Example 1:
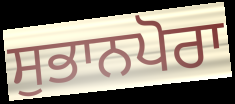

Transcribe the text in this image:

ਸੁਭਾਨਪੋਰਾ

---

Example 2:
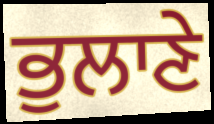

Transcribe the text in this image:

ਭੁਲਾਣੇ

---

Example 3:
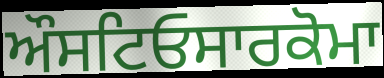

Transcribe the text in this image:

ਔਸਟਿਓਸਾਰਕੋਮਾ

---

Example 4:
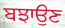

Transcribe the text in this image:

ਬਝਾਉਣ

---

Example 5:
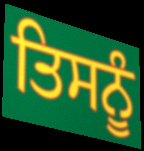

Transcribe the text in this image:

ਤਿਸਨੂੰ